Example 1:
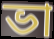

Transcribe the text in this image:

ভা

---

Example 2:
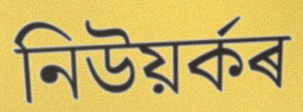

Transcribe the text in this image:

নিউয়ৰ্কৰ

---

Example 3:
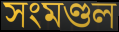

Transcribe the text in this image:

সংমণ্ডল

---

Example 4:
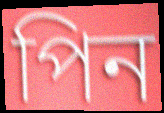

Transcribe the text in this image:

পিন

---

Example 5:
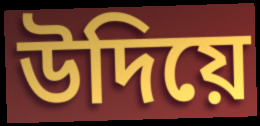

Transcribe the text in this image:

উদিয়ে